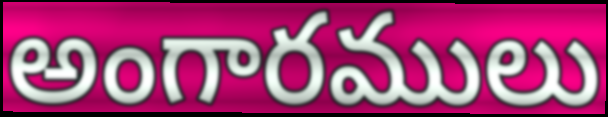
అంగారములు